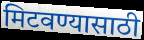
मिटवण्यासाठी